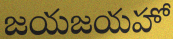
జయజయహో